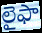
లైఫా